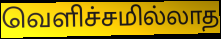
வெளிச்சமில்லாத